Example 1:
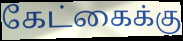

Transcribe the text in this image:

கேட்கைக்கு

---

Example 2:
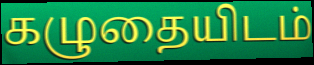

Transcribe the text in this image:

கழுதையிடம்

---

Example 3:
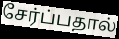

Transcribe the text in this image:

சேர்ப்பதால்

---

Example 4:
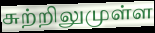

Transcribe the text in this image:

சுற்றிலுமுள்ள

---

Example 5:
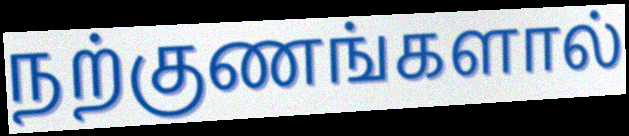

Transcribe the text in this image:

நற்குணங்களால்